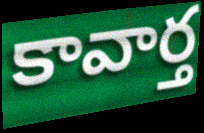
కావార్త